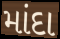
માંદા